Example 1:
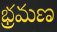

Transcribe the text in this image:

భ్రమణ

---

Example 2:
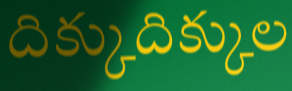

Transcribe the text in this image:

దిక్కుదిక్కుల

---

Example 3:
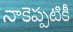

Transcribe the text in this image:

నాకెప్పటికీ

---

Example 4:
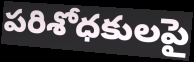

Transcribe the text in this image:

పరిశోధకులపై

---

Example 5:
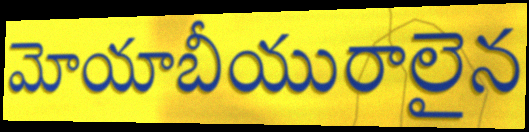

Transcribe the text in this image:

మోయాబీయురాలైన